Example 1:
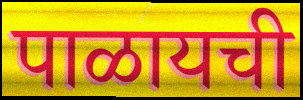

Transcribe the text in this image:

पाळायची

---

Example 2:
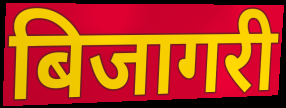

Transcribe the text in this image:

बिजागरी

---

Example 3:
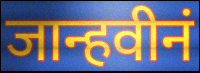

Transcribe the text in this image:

जान्हवीनं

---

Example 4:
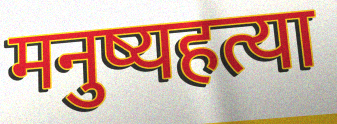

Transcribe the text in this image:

मनुष्यहत्या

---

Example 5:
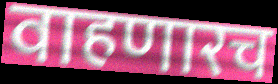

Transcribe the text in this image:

वाहणारच